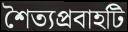
শৈত্যপ্রবাহটি